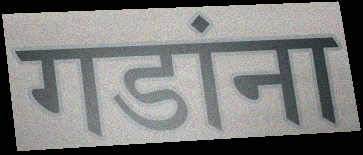
गडांना